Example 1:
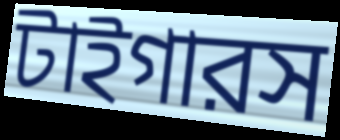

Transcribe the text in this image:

টাইগারস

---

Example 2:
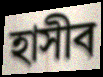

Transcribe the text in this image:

হাসীব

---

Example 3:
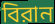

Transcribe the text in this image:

বিরান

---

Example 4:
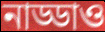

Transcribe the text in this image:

নাড্ডাও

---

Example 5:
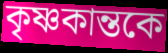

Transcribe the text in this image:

কৃষ্ণকান্তকে